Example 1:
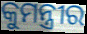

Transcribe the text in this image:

କୁମନ୍ତ୍ରୀର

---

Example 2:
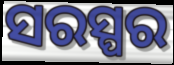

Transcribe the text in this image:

ସରସ୍ପର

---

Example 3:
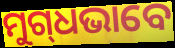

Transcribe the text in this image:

ମୁଗ୍‌ଧଭାବେ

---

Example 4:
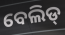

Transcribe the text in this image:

ବେଲିଡ୍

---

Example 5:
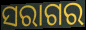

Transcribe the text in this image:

ସରାଗର